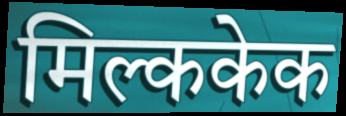
मिल्ककेक